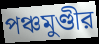
পঞ্চমুণ্ডীর